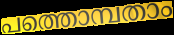
പത്തൊമ്പതാം